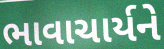
ભાવાચાર્યને